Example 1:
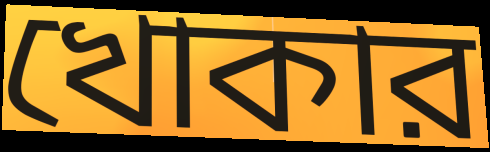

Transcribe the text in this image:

খোকার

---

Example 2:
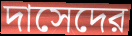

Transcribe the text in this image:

দাসেদের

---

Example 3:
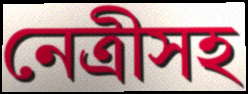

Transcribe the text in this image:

নেত্রীসহ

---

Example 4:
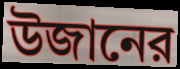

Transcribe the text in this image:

উজানের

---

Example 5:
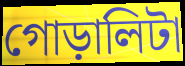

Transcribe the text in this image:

গোড়ালিটা